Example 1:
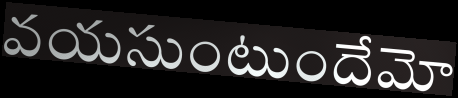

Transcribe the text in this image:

వయసుంటుందేమో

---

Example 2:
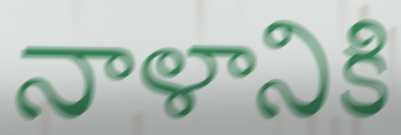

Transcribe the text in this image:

నాళానికి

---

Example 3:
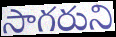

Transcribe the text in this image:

సాగరుని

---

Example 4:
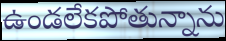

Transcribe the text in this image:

ఉండలేకపోతున్నాను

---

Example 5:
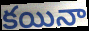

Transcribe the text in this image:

కయినా